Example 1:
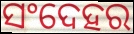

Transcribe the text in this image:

ସଂଦେହର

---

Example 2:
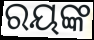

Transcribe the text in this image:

ରୟଙ୍କ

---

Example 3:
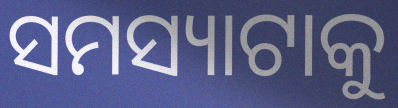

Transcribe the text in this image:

ସମସ୍ୟାଟାକୁ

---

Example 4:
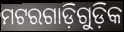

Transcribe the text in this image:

ମଟରଗାଡ଼ିଗୁଡ଼ିକ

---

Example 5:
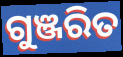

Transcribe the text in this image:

ଗୁଞ୍ଜରିତ